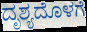
ದೃಶ್ಯದೊಳಗೆ